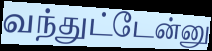
வந்துட்டேன்னு